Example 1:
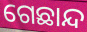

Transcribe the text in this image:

ଗେଛାନ୍ଦ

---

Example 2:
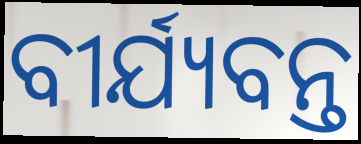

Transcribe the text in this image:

ବୀର୍ଯ୍ୟବନ୍ତ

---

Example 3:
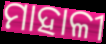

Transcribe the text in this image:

ମାହାଳୀ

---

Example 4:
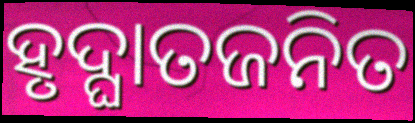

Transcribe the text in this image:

ହୃଦ୍ଘାତଜନିତ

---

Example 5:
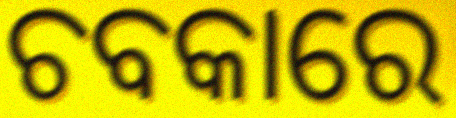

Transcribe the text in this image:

ଚବକାରେ